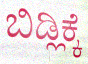
ಬಿಡ್ಲಿಕ್ಕೆ